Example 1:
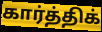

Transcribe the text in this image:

கார்த்திக்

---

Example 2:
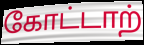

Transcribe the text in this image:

கோட்டாற்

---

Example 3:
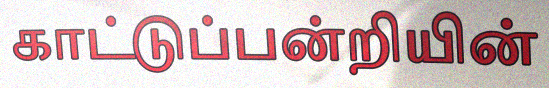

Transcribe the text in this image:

காட்டுப்பன்றியின்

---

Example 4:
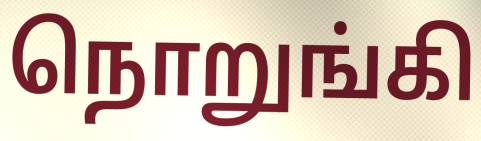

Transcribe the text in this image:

நொறுங்கி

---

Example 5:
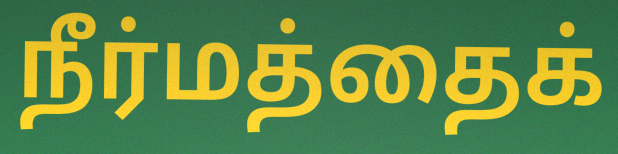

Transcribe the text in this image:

நீர்மத்தைக்